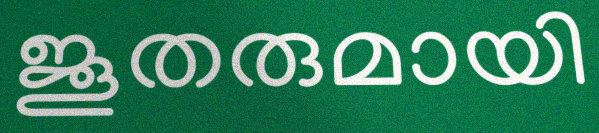
ജൂതരുമായി